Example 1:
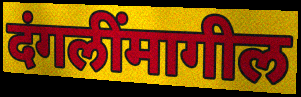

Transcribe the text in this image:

दंगलींमागील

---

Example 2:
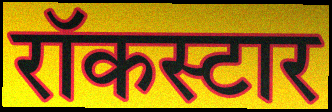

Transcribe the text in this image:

रॉकस्टार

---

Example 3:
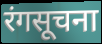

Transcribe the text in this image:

रंगसूचना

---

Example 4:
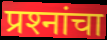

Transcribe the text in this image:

प्रश्‍नांचा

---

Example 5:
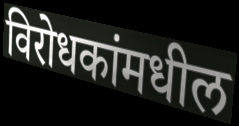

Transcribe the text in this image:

विरोधकांमधील